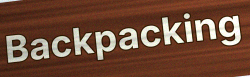
Backpacking